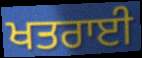
ਖਤਰਾਈ